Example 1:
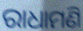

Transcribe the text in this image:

ରାଧାମଣି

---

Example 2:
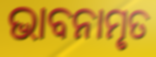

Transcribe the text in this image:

ଭାବନାମୃତ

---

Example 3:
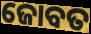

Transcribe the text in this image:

ଜୋବତ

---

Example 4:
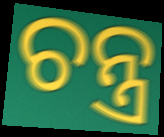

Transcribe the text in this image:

ଚନ୍ତ୍ର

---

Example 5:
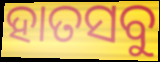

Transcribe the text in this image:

ହାତସବୁ